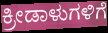
ಕ್ರೀಡಾಳುಗಳಿಗೆ